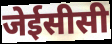
जेईसीसी